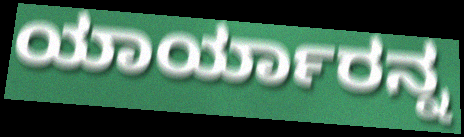
ಯಾರ್ಯಾರನ್ನ